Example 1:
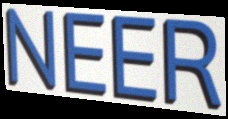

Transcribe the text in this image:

NEER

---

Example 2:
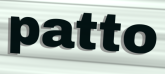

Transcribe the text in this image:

patto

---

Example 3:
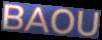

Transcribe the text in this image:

BAOU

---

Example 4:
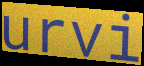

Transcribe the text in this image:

urvi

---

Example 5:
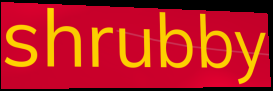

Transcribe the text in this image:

shrubby